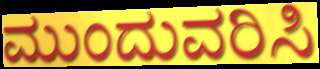
ಮುಂದುವರಿಸಿ